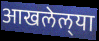
आखलेल्या